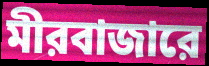
মীরবাজারে